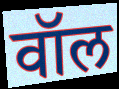
वॉल